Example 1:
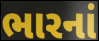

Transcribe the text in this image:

ભારનાં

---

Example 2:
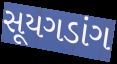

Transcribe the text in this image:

સૂયગડાંગ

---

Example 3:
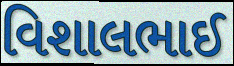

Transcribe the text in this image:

વિશાલભાઈ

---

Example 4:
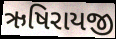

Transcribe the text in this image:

ઋષિરાયજી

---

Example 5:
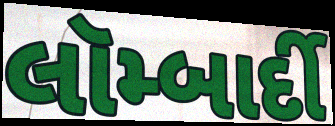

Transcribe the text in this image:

લૉમ્બાર્દી